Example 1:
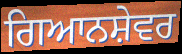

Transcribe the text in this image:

ਗਿਆਨਸ਼ੇਵਰ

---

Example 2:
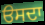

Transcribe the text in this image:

ੳਸਦਾ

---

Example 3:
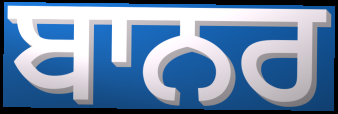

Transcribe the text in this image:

ਬਾਨਰ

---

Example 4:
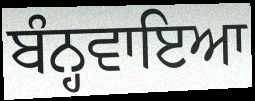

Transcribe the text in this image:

ਬੰਨ੍ਹਵਾਇਆ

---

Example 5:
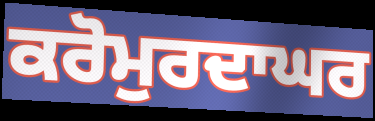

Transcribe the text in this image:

ਕਰੋਮੁਰਦਾਘਰ